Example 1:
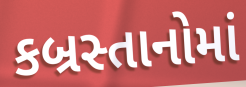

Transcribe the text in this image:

કબ્રસ્તાનોમાં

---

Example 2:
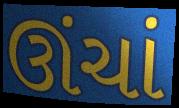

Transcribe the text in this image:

ઊંચાં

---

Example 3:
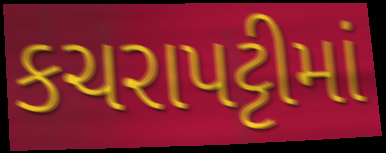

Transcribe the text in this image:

કચરાપટ્ટીમાં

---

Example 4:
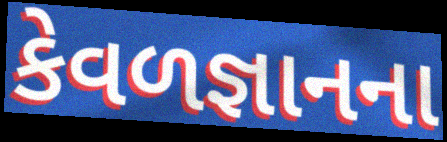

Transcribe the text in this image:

કેવળજ્ઞાનના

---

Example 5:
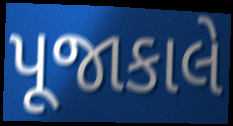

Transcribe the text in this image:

પૂજાકાલે